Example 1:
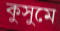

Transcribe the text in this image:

কুসুমে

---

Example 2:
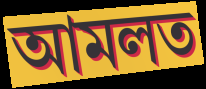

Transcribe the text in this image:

আমলত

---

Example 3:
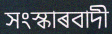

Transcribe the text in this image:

সংস্কাৰবাদী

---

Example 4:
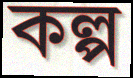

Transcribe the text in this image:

কল্প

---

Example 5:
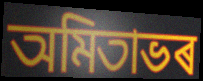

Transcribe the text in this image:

অমিতাভৰ